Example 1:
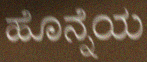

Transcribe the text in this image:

ಹೊನ್ನೆಯ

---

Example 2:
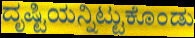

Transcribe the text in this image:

ದೃಷ್ಟಿಯನ್ನಿಟ್ಟುಕೊಂಡು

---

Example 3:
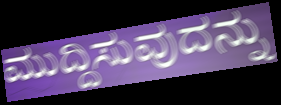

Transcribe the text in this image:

ಮುದ್ದಿಸುವುದನ್ನು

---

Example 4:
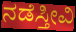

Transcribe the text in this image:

ನಡೆಸ್ತೀವಿ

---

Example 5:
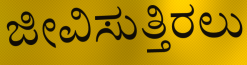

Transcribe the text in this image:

ಜೀವಿಸುತ್ತಿರಲು